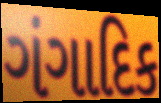
ગંગાદિક